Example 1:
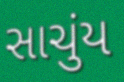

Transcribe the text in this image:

સાચુંય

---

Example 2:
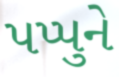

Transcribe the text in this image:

પપ્પુને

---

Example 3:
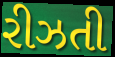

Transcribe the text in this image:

રીઝતી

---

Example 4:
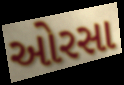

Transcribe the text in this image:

ઓરસા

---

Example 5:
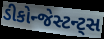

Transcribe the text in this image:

ડીકોન્જેસ્ટન્ટ્સ